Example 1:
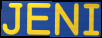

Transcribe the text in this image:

JENI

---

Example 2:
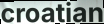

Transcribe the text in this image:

croatian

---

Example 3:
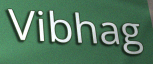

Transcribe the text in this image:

Vibhag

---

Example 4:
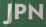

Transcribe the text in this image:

JPN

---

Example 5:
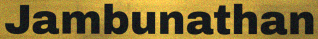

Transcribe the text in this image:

Jambunathan